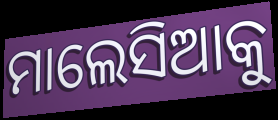
ମାଲେସିଆକୁ